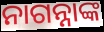
ନାଗନ୍ନାଙ୍କ